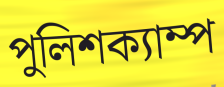
পুলিশক্যাম্প